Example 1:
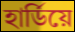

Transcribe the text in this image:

হাৰ্ডিয়ে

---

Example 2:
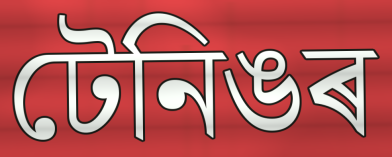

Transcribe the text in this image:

টেনিঙৰ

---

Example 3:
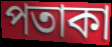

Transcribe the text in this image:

পতাকা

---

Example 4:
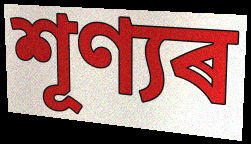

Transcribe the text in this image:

শূণ্যৰ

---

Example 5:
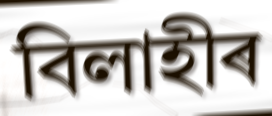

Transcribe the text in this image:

বিলাহীৰ